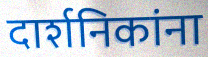
दार्शनिकांना